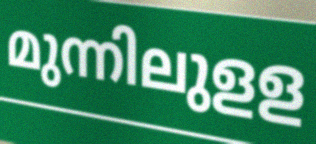
മുന്നിലുളള